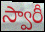
స్వారీ